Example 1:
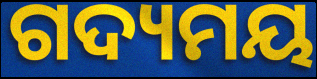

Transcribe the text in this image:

ଗଦ୍ୟମୟ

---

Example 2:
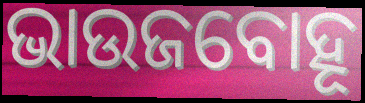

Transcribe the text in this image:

ଭାଉଜବୋହୂ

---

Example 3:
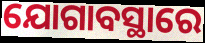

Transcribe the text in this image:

ଯୋଗାବସ୍ଥାରେ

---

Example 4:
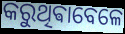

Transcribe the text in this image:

କରୁଥିଵାବେଳେ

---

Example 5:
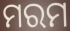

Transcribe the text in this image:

ମରମ